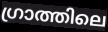
ഗ്രാത്തിലെ